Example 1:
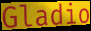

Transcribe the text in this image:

Gladio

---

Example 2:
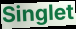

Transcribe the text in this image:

Singlet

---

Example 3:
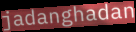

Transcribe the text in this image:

jadanghadan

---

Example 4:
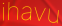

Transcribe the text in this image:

ihavu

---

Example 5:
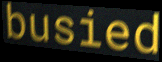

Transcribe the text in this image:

busied